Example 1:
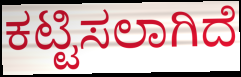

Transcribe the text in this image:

ಕಟ್ಟಿಸಲಾಗಿದೆ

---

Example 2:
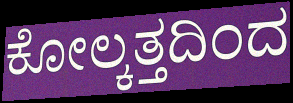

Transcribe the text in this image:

ಕೋಲ್ಕತ್ತದಿಂದ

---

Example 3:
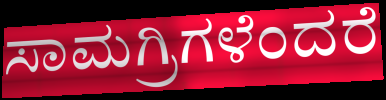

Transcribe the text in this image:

ಸಾಮಗ್ರಿಗಳೆಂದರೆ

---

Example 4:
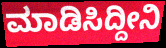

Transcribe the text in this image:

ಮಾಡಿಸಿದ್ದೀನಿ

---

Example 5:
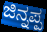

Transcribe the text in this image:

ಜಿನ್ನಪ್ಪ